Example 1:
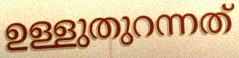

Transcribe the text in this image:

ഉള്ളുതുറന്നത്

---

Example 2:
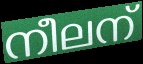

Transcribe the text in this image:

നീലന്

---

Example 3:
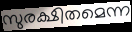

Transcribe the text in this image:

സുരക്ഷിതമെന്ന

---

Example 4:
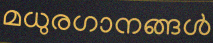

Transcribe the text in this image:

മധുരഗാനങ്ങൾ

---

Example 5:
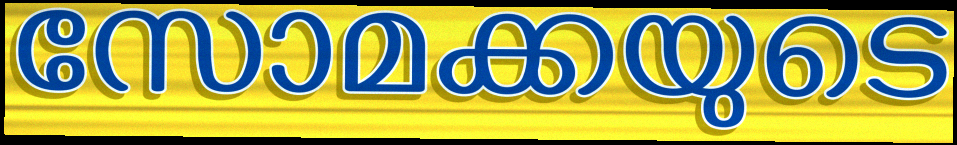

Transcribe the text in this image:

സോമക്കയുടെ